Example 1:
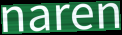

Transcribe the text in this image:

naren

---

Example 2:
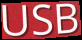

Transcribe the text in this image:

USB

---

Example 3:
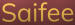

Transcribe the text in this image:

Saifee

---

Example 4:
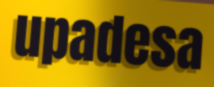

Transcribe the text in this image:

upadesa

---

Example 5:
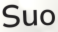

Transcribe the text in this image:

Suo